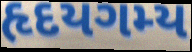
હૃદયગમ્ય